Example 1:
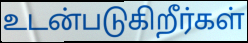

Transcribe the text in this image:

உடன்படுகிறீர்கள்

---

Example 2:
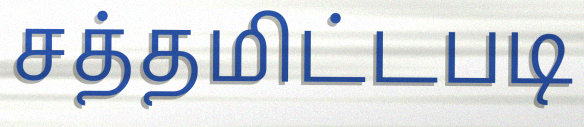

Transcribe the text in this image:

சத்தமிட்டபடி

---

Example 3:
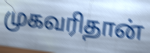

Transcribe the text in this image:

முகவரிதான்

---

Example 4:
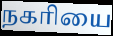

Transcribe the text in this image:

நகரியை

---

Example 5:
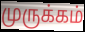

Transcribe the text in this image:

முருக்கம்